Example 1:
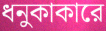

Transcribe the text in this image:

ধনুকাকারে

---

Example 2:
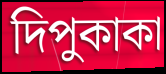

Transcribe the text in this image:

দিপুকাকা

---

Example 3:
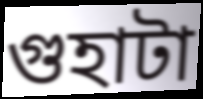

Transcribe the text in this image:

গুহাটা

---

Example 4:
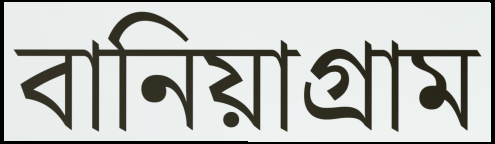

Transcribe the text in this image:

বানিয়াগ্রাম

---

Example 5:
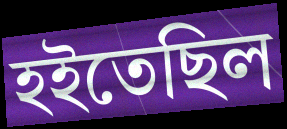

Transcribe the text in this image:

হইতেছিল